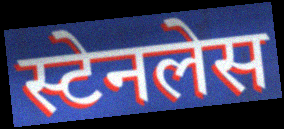
स्टेनलेस